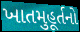
ખાતમુહૂર્તનો